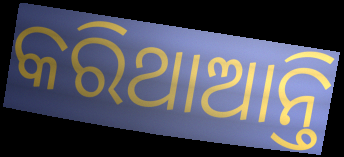
କରିଥାଆନ୍ତି